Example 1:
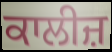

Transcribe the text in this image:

ਕਾਲੀਜ਼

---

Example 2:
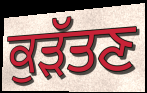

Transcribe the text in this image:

ਕੁੜੱਤਣ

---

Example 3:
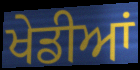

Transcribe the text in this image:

ਖੇਡੀਆਂ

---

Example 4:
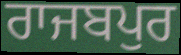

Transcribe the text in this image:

ਰਾਜਬਪੁਰ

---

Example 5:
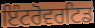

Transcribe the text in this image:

ਇੰਟਰੋਵਰਟਿਡ